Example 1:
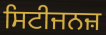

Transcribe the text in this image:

ਸਿਟੀਜਨਜ਼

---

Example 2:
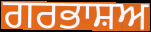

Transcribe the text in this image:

ਗਰਭਾਸ਼ਅ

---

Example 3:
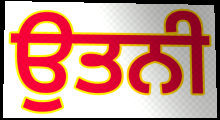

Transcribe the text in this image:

ਉਤਨੀ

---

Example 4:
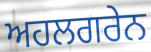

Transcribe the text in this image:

ਅਹਲਗਰੇਨ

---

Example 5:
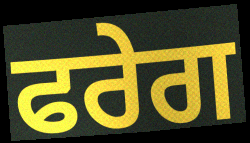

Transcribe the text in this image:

ਫਰੇਗ